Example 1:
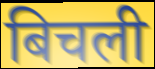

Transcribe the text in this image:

बिचली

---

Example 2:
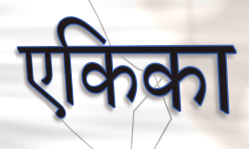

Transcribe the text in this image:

एकिका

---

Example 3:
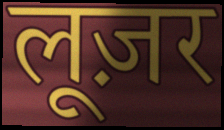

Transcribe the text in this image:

लूज़र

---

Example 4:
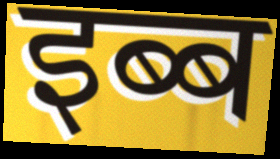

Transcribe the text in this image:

इब्ब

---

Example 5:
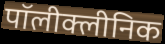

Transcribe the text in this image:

पॉलीक्लीनिक